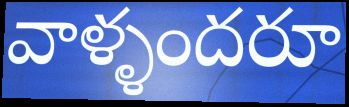
వాళ్ళందరూ